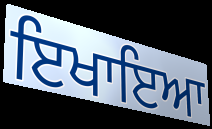
ਇਖਾਇਆ